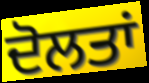
ਦੋਲਤਾਂ